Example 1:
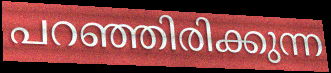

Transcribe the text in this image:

പറഞ്ഞിരിക്കുന്ന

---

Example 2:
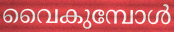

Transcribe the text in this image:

വൈകുമ്പോൾ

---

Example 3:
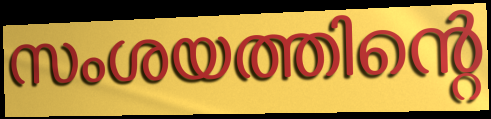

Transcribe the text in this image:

സംശയത്തിന്റെ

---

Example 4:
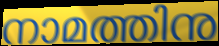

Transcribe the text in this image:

നാമത്തിനു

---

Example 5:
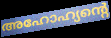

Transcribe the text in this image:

അഹോഹ്യന്റെ